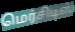
மெர்சிடிஸ்